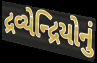
દ્રવ્યેન્દ્રિયોનું